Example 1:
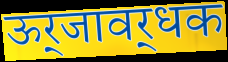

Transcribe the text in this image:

ऊर्जावर्धक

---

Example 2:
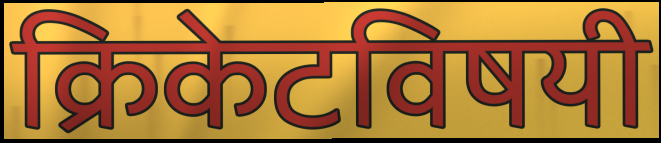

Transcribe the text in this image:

क्रिकेटविषयी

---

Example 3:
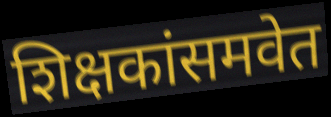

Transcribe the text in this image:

शिक्षकांसमवेत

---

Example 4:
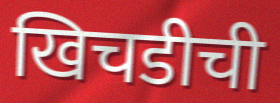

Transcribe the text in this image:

खिचडीची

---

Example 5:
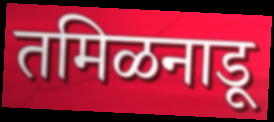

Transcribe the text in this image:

तमिळनाडू